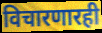
विचारणारही